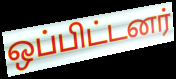
ஒப்பிட்டனர்